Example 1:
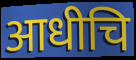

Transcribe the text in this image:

आधीचि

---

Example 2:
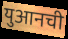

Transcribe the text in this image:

युआनची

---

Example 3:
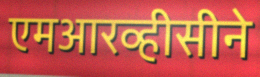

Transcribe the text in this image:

एमआरव्हीसीने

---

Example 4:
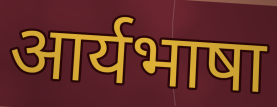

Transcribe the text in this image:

आर्यभाषा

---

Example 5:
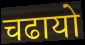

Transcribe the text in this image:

चढायो